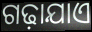
ଗଢ଼ାଯାଏ